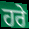
ਹਰੇ